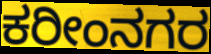
ಕರೀಂನಗರ